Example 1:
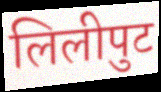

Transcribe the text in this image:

लिलीपुट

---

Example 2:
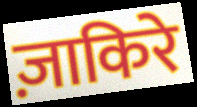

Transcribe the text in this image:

ज़ाकिरे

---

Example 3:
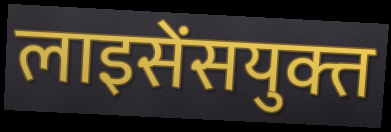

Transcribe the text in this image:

लाइसेंसयुक्त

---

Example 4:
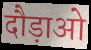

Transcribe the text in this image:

दौड़ाओ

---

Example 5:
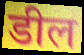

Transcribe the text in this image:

डील